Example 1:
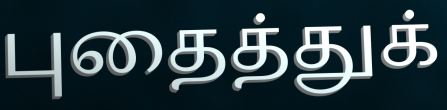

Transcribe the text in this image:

புதைத்துக்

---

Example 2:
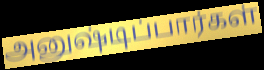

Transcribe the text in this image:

அனுஷ்டிப்பார்கள்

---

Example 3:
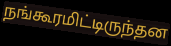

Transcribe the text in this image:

நங்கூரமிட்டிருந்தன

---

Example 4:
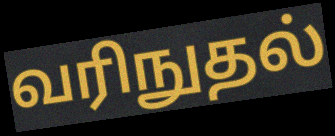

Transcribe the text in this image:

வரிநுதல்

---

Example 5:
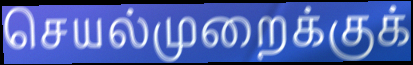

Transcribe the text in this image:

செயல்முறைக்குக்